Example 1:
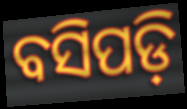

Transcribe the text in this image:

ବସିପଡ଼ି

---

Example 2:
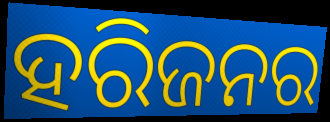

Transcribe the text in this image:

ହରିଜନର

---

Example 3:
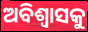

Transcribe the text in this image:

ଅବିଶ୍ୱାସକୁ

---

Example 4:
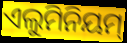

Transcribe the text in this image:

ଏଲୁମିନିୟମ୍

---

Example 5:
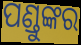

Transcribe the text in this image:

ପଣ୍ଡୁଙ୍କର